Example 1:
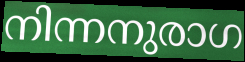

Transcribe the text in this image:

നിന്നനുരാഗ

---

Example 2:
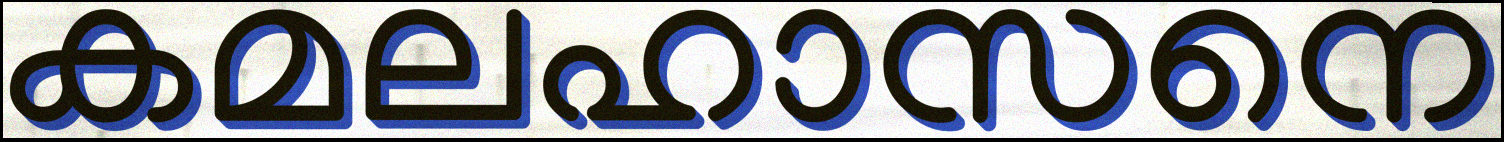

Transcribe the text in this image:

കമലഹാസനെ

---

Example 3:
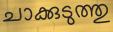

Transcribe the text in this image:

ചാക്കുടുത്തു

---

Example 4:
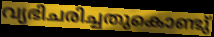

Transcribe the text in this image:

വ്യഭിചരിച്ചതുകൊണ്ടു്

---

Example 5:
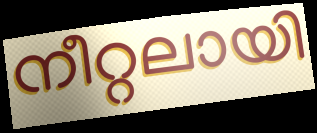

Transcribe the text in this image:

നീറ്റലായി